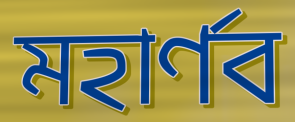
মহার্ণব